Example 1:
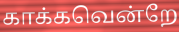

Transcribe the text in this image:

காக்கவென்றே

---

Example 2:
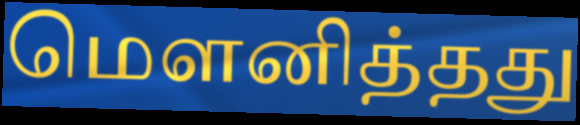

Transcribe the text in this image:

மௌனித்தது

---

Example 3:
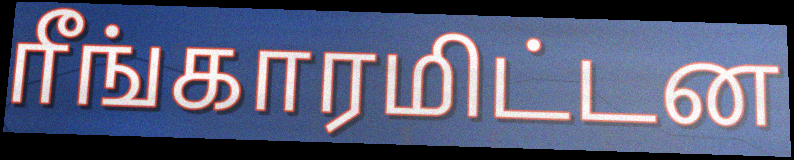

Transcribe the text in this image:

ரீங்காரமிட்டன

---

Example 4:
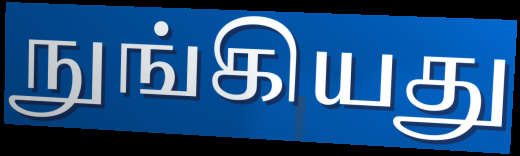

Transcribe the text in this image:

நுங்கியது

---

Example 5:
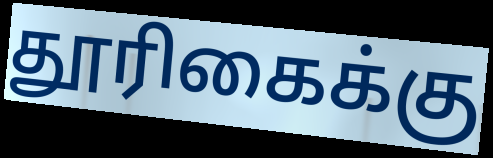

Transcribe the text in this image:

தூரிகைக்கு